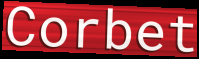
Corbet